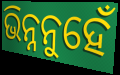
ଭିନ୍ନନୁହେଁ